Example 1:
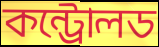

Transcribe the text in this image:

কন্ট্রোলড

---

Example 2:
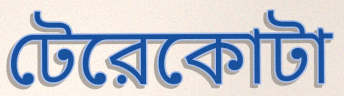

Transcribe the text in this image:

টেরেকোটা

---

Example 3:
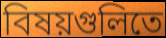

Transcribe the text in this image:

বিষয়গুলিতে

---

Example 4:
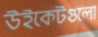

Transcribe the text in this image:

উইকেটগুলো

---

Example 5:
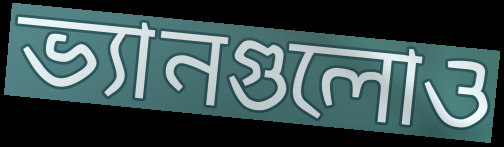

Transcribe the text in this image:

ভ্যানগুলোও